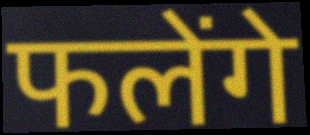
फलेंगे